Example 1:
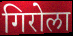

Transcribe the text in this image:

गिरोला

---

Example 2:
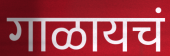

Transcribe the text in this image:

गाळायचं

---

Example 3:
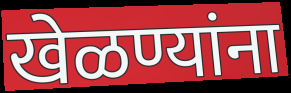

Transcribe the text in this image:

खेळण्यांना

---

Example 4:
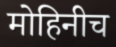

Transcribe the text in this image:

मोहिनीच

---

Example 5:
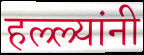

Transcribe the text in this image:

हल्ल्यांनी